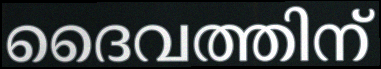
ദൈവത്തിന്